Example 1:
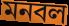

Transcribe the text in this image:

মনবল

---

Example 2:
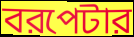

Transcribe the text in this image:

বরপেটার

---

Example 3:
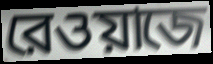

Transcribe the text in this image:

রেওয়াজে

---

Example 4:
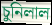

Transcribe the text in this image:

চুনিলাল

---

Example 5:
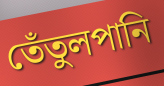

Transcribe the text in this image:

তেঁতুলপানি